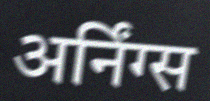
अर्निंग्स